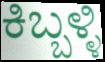
ಕಿಬ್ಬಳ್ಳಿ